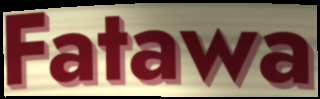
Fatawa